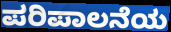
ಪರಿಪಾಲನೆಯ